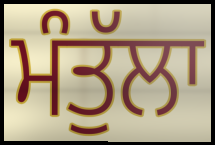
ਮੰਤੁੱਲਾ